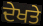
ਦੇਖਤੇ